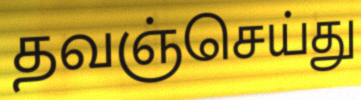
தவஞ்செய்து